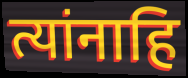
त्यांनाहि